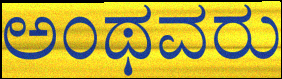
ಅಂಥವರು